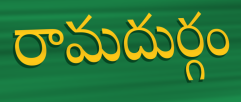
రామదుర్గం